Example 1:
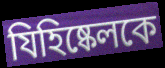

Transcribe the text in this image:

যিহিষ্কেলকে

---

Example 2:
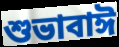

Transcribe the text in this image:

শুভাবাঈ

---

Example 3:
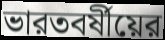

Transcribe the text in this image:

ভারতবর্ষীয়ের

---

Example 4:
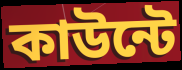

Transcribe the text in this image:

কাউন্টে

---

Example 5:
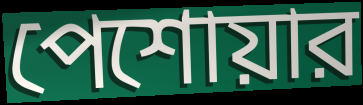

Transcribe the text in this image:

পেশোয়ার